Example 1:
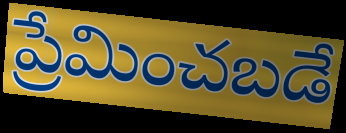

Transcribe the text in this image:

ప్రేమించబడే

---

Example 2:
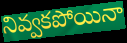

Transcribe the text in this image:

నివ్వకపోయినా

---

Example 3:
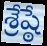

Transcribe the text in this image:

శ్రేష్ఠే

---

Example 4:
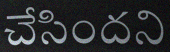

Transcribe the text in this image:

చేసిందని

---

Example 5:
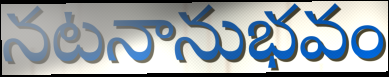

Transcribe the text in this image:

నటనానుభవం